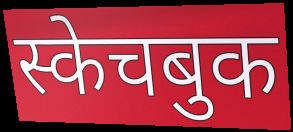
स्केचबुक